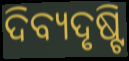
ଦିବ୍ୟଦୃଷ୍ଟି